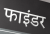
फाइंडर